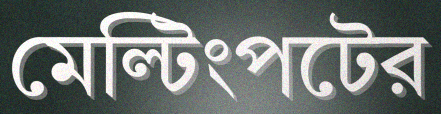
মেল্টিংপটের